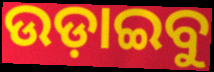
ଉଡ଼ାଇବୁ